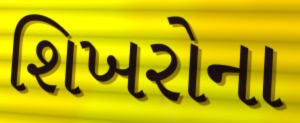
શિખરોના